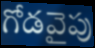
గోడవైపు